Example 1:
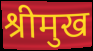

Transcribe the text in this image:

श्रीमुख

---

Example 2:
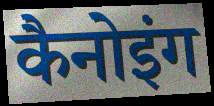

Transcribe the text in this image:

कैनोइंग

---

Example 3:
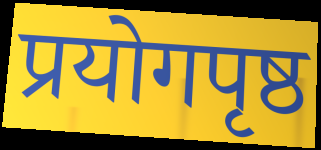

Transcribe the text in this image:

प्रयोगपृष्ठ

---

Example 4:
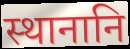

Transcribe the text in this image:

स्थानानि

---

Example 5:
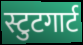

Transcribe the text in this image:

स्टुटगार्ट